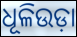
ଧୂଳିଉଡ଼ା